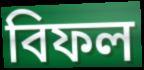
বিফল